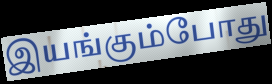
இயங்கும்போது